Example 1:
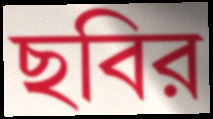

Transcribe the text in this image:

ছবির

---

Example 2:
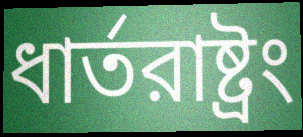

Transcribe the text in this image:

ধার্তরাষ্ট্রং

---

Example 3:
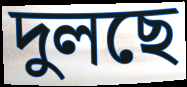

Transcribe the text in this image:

দুলছে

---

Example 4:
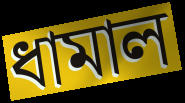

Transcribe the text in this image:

ধামাল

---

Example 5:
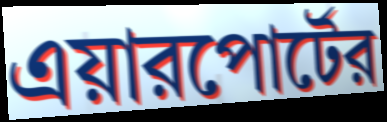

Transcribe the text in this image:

এয়ারপোর্টের